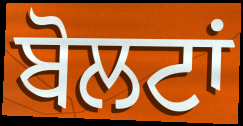
ਬੋਲਟਾਂ